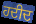
ਹਦੀਦ